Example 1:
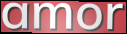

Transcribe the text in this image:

amor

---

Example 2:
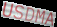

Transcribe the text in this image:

USDMA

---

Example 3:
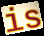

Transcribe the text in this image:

is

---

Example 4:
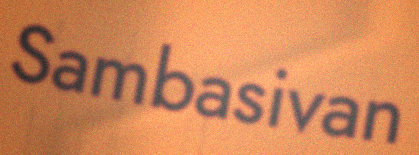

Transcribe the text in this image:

Sambasivan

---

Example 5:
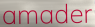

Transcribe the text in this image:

amader